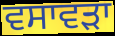
ਵਸਾਵੜਾ